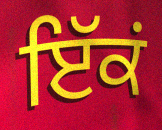
ਇੱਕਂ